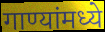
गाण्यांमध्ये